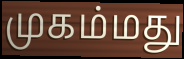
முகம்மது